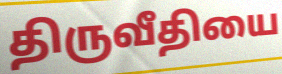
திருவீதியை